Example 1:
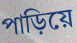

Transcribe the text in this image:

পাড়িয়ে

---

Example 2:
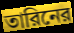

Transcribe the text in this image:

তারিনের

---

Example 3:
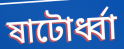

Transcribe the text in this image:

ষাটোর্ধ্বা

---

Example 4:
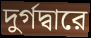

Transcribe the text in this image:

দুর্গদ্বারে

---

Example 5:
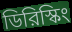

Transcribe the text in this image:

ডিরিস্কিং